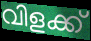
വിളക്ക്